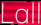
Lall